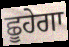
ਛੂਹੇਗਾ